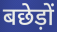
बछेड़ों